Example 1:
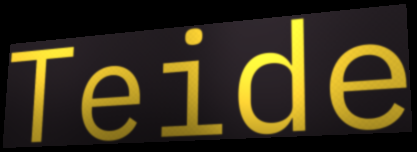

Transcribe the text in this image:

Teide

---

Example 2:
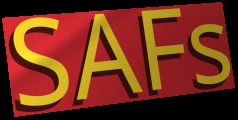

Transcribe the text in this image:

SAFs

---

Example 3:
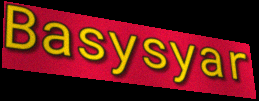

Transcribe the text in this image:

Basysyar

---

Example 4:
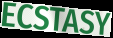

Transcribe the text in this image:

ECSTASY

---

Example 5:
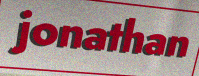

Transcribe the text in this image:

jonathan